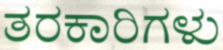
ತರಕಾರಿಗಳು